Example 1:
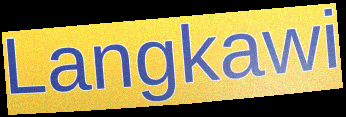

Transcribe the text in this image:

Langkawi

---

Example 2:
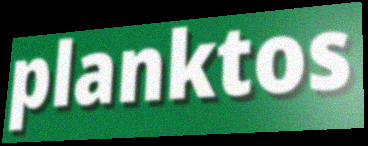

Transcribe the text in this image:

planktos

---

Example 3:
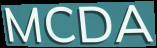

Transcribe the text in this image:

MCDA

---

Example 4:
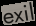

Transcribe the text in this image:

exil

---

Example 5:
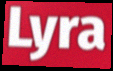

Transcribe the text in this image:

Lyra